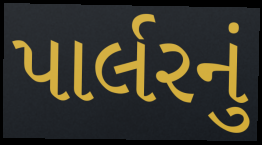
પાર્લરનું